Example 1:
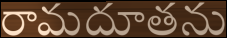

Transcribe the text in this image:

రామదూతను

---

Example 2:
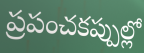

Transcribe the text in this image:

ప్రపంచకప్పుల్లో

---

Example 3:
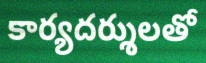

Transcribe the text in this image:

కార్యదర్శులతో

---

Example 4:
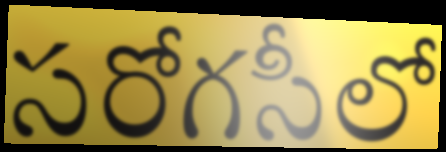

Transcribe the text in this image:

సరోగసీలో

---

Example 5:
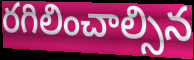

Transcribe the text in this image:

రగిలించాల్సిన